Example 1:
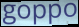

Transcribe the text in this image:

goppo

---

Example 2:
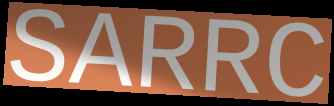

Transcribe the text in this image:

SARRC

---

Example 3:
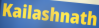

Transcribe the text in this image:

Kailashnath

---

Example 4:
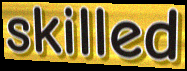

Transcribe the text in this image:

skilled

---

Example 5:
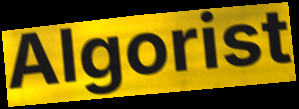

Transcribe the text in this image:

Algorist